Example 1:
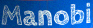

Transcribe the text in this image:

Manobi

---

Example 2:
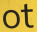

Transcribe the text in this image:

ot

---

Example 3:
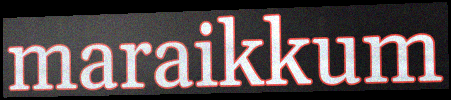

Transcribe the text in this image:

maraikkum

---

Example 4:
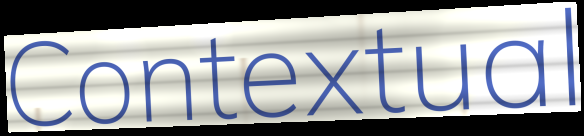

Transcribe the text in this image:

Contextual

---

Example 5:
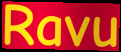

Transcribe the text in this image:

Ravu